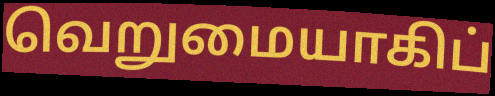
வெறுமையாகிப்